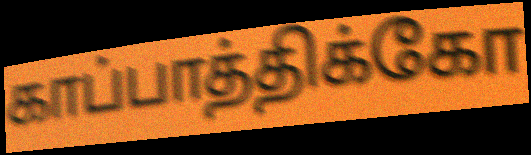
காப்பாத்திக்கோ